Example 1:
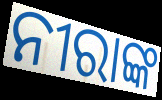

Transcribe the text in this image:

ନୀରାଙ୍କ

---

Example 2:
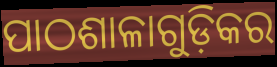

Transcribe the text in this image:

ପାଠଶାଳାଗୁଡ଼ିକର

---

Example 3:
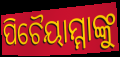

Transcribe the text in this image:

ପିଚୈୟାମ୍ମାଙ୍କୁ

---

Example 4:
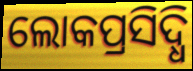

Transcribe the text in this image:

ଲୋକପ୍ରସିଦ୍ଧି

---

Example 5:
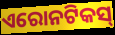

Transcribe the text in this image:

ଏରୋନଟିକସ୍